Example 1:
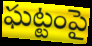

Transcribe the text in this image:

ఘట్టంపై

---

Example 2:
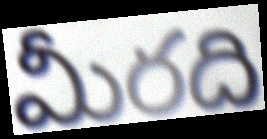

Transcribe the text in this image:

మీరది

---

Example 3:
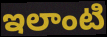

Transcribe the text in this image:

ఇలాంటి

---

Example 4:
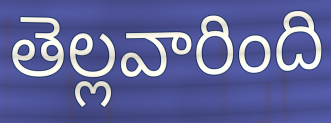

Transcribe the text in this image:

తెల్లవారింది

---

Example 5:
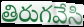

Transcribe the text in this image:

తిరుగవేసి